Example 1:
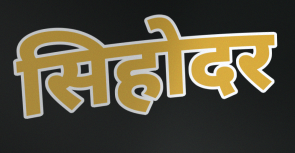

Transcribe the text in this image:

सिहोदर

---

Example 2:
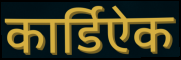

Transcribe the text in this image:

कार्डिऐक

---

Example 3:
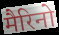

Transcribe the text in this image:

मैरिनो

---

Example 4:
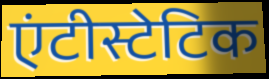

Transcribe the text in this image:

एंटीस्टेटिक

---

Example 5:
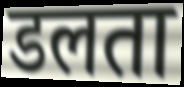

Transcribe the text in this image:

डलता